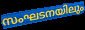
സംഘടനയിലും